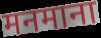
मनमाना